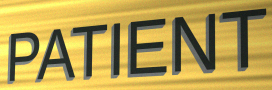
PATIENT